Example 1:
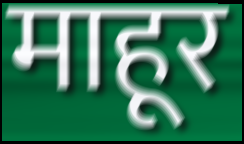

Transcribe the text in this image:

माहूर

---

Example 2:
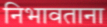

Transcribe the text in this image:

निभावताना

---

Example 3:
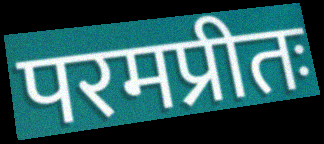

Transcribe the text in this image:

परमप्रीतः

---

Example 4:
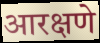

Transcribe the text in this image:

आरक्षणे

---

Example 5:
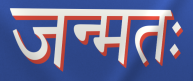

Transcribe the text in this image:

जन्मतः